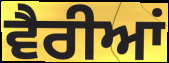
ਵੈਰੀਆਂ